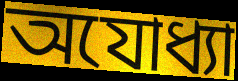
অযোধ্যা